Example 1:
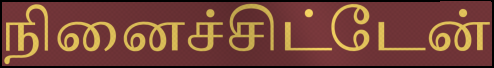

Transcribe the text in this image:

நினைச்சிட்டேன்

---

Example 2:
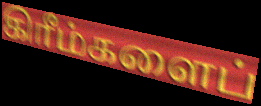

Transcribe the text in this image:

கிரீம்களைப்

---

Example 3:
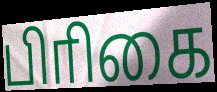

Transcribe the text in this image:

பிரிகை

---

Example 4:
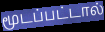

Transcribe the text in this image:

மூடப்பட்டால்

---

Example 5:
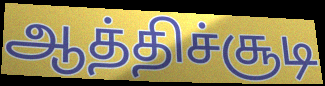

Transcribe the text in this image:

ஆத்திச்சூடி